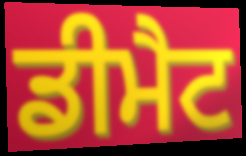
ਡੀਮੈਟ